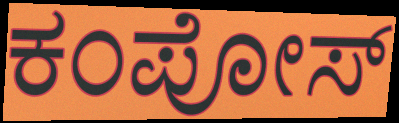
ಕಂಪೋಸ್